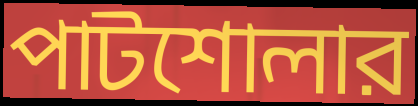
পাটশোলার